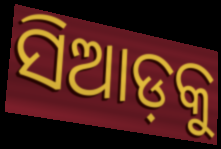
ସିଆଡ଼କୁ